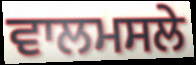
ਵਾਲਮਸਲੇ